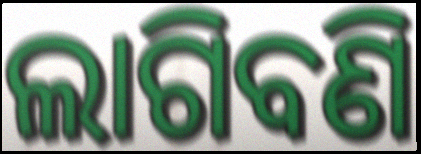
ଲାଗିବଣି